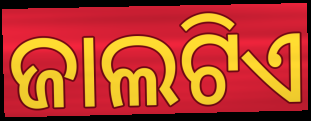
ଜାଲଟିଏ